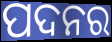
ପଦନର